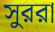
সুররা